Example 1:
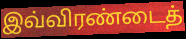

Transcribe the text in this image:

இவ்விரண்டைத்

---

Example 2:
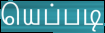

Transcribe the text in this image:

யெப்படி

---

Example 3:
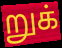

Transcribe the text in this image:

றுக்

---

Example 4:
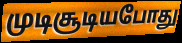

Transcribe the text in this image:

முடிசூடியபோது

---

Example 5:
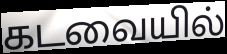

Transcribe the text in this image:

கடவையில்